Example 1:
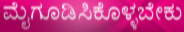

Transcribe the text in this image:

ಮೈಗೂಡಿಸಿಕೊಳ್ಳಬೇಕು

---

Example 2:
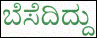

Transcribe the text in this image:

ಬೆಸೆದಿದ್ದು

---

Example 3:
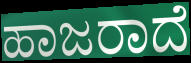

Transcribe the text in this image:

ಹಾಜರಾದೆ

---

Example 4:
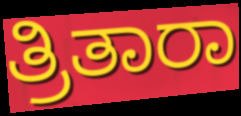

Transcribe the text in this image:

ತ್ರಿತಾರಾ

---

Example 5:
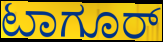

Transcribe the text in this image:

ಟಾಗೂರ್